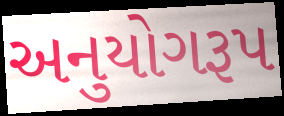
અનુયોગરૂપ